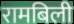
रामबिली